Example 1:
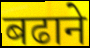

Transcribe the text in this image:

बढाने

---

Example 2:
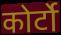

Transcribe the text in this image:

कोर्टो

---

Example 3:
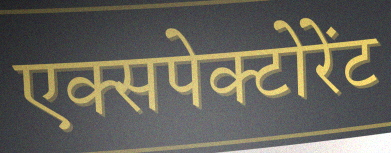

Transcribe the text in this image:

एक्सपेक्टोरेंट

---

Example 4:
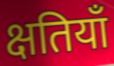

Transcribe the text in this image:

क्षतियाँ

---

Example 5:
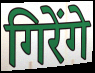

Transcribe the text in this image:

गिरेंगे